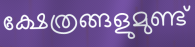
ക്ഷേത്രങ്ങളുമുണ്ട്